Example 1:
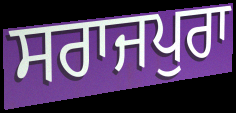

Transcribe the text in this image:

ਸਰਾਜਪੁਰਾ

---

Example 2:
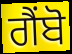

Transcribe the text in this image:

ਗੈਂਬੋ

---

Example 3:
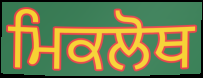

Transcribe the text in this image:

ਮਿਕਲੋਥ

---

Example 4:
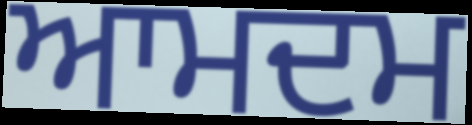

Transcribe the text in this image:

ਆਮਦਮ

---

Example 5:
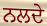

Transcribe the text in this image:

ਨਲਦੇ